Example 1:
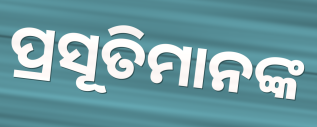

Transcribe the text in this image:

ପ୍ରସୂତିମାନଙ୍କ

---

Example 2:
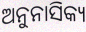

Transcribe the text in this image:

ଅନୁନାସିକ୍ୟ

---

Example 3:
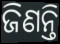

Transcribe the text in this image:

ଜିଣନ୍ତି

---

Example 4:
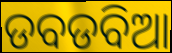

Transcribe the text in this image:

ଡବଡବିଆ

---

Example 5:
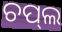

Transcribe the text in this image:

ଚପ୍‌ଲ